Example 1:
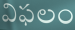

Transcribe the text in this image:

విఫలం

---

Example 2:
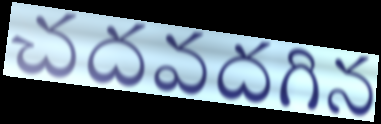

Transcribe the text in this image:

చదవదగిన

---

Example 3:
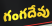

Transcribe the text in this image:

గంగదేవు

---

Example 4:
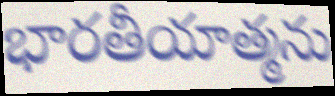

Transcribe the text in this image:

భారతీయాత్మను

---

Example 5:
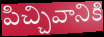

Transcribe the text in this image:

పిచ్చివానికి